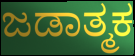
ಜಡಾತ್ಮಕ